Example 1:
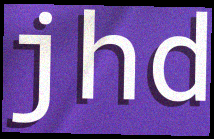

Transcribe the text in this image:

jhd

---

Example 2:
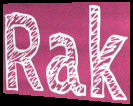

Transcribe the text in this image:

Rak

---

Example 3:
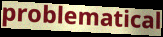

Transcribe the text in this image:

problematical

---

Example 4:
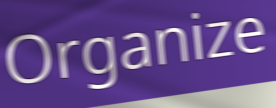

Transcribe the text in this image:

Organize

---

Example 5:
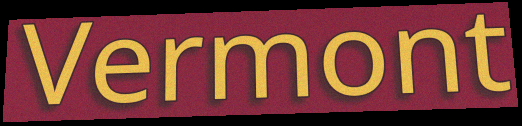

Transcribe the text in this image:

Vermont